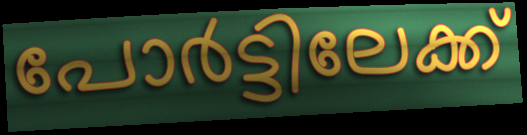
പോർട്ടിലേക്ക്